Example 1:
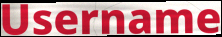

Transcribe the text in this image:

Username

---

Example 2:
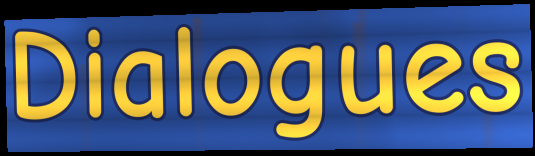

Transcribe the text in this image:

Dialogues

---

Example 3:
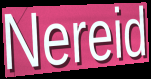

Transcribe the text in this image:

Nereid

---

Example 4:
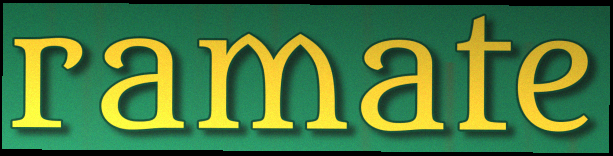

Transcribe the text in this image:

ramate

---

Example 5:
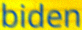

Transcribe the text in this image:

biden